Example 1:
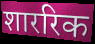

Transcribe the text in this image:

शाररिक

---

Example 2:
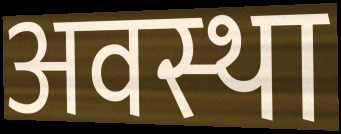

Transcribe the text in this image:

अवस्था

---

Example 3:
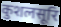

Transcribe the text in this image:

कुशलसूरि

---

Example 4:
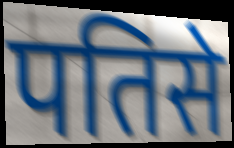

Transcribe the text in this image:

पतिसे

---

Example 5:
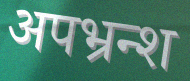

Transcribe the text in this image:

अपभ्रन्श